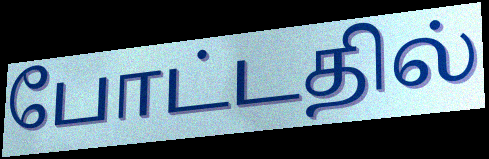
போட்டதில்